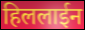
हिललाईन